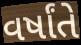
વર્ષાંતે